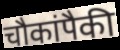
चौकांपैकी